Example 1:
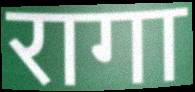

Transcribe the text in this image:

रागा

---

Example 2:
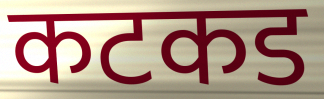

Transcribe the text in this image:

कटकड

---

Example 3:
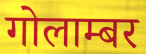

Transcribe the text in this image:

गोलाम्बर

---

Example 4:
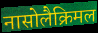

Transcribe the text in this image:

नासोलैक्रिमल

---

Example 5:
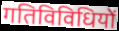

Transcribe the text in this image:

गतिविविधियों